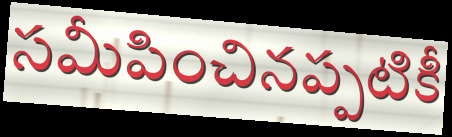
సమీపించినప్పటికీ